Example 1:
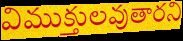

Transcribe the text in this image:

విముక్తులవుతారని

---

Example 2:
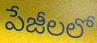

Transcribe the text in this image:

పేజీలలో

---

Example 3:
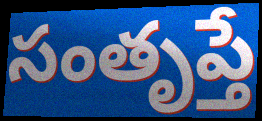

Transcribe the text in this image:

సంతృప్తే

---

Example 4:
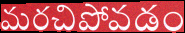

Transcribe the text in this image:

మరచిపోవడం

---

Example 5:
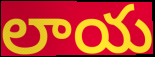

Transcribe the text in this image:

లాయ